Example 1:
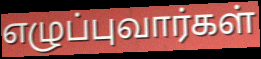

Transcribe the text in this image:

எழுப்புவார்கள்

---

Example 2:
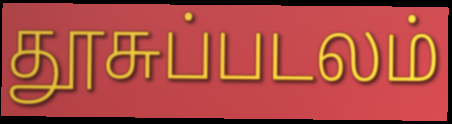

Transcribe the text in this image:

தூசுப்படலம்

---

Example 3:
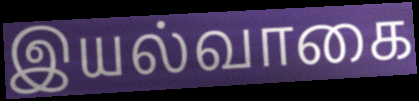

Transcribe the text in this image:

இயல்வாகை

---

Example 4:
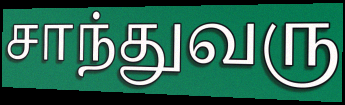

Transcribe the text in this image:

சாந்துவரு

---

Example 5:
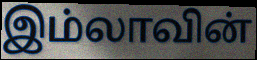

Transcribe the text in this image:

இம்லாவின்